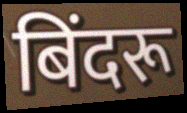
बिंदरू